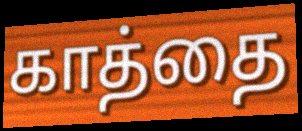
காத்தை